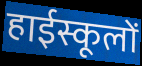
हाईस्कूलों